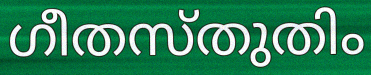
ഗീതസ്തുതിം